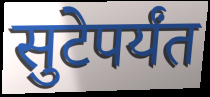
सुटेपर्यंत